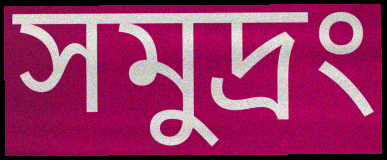
সমুদ্রং